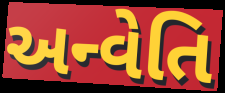
અન્વેતિ